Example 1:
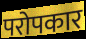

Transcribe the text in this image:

परोपकार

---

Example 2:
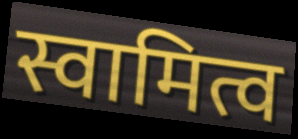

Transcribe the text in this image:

स्वामित्व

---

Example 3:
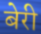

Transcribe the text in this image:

बेरी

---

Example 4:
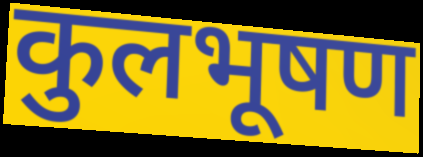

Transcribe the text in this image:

कुलभूषण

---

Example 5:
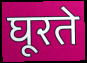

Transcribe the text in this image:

घूरते